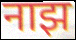
नाझ